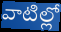
వాటిల్లో